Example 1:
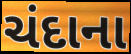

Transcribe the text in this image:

ચંદાના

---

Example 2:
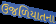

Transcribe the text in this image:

ઉજળિયાતના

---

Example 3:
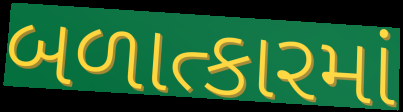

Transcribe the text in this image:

બળાત્કારમાં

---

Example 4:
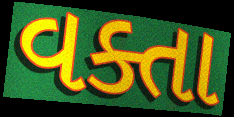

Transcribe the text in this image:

વક્તા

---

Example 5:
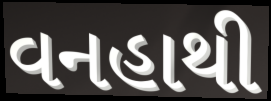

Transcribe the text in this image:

વનહાથી